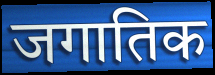
जगातिक